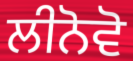
ਲੀਨੋਵੋ